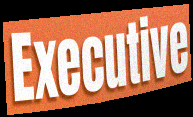
Executive